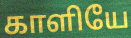
காளியே